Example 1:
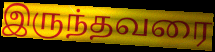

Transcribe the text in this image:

இருந்தவரை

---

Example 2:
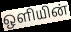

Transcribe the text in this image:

ஒளியின்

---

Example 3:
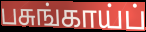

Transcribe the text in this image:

பசுங்காய்ப்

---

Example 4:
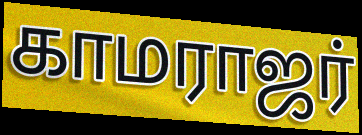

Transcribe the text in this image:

காமராஜர்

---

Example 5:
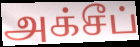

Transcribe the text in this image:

அக்சீப்